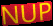
NUP